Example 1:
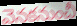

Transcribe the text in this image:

వెనకనుంచీ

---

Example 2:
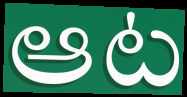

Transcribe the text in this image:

ఆట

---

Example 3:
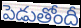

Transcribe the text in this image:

పెడుతోందీ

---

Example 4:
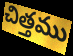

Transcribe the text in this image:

చిత్తము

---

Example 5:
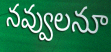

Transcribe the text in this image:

నవ్వులనూ